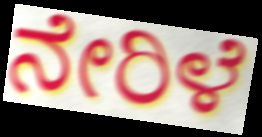
ನೇರಿಳೆ